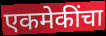
एकमेकींचा